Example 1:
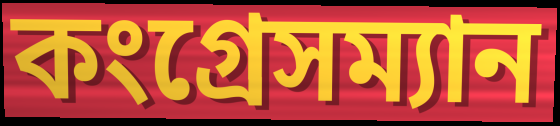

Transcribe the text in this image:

কংগ্রেসম্যান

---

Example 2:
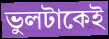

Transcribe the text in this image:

ভুলটাকেই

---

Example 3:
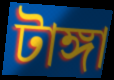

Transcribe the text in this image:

টাঙ্গা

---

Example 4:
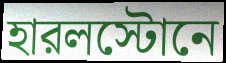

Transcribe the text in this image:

হারলস্টোনে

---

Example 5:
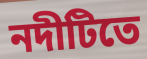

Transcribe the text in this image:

নদীটিতে